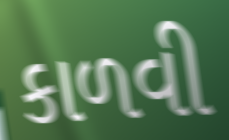
કાળવી